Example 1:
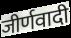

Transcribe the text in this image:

जीर्णवादी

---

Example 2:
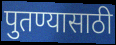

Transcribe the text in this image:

पुतण्यासाठी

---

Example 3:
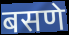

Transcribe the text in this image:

बसणे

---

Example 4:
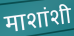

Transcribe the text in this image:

माशांशी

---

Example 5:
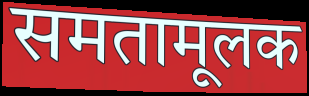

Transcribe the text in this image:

समतामूलक